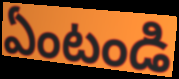
ఏంటండి